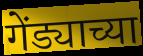
गेंड्याच्या